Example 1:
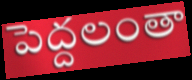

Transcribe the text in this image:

పెద్దలంతా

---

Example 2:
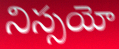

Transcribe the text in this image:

నిస్సయో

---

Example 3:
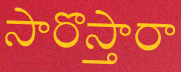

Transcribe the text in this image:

సారొస్తారా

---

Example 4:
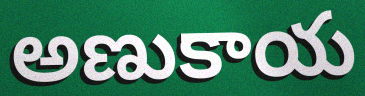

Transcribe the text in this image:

అణుకాయ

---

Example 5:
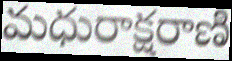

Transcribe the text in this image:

మధురాక్షరాణి